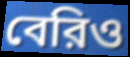
বেরিও